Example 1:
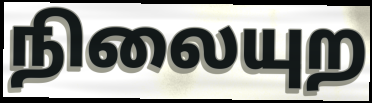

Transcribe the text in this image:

நிலையுற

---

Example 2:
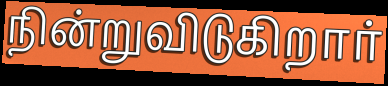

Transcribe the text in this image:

நின்றுவிடுகிறார்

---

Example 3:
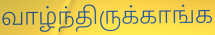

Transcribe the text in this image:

வாழ்ந்திருக்காங்க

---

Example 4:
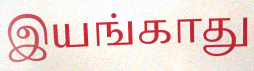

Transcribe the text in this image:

இயங்காது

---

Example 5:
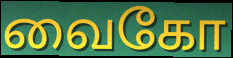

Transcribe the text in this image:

வைகோ